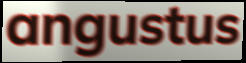
angustus